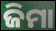
ଜିମା